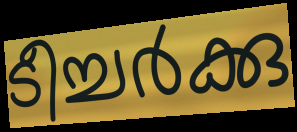
ടീച്ചർക്കു